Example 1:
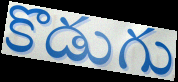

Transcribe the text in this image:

కొడుగు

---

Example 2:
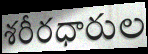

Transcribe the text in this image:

శరీరధారుల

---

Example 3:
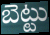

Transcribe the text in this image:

బెట్టు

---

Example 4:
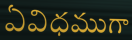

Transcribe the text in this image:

ఏవిధముగా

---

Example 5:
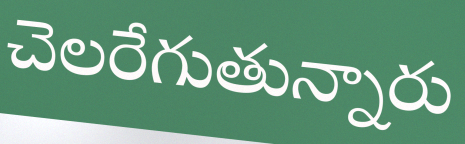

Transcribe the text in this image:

చెలరేగుతున్నారు